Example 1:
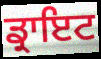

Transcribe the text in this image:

ਡ੍ਰਾਇਟ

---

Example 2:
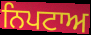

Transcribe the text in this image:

ਨਿਪਟਾਅ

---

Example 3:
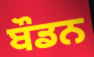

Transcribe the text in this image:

ਬੌਡਨ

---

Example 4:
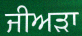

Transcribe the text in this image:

ਜੀਅੜਾ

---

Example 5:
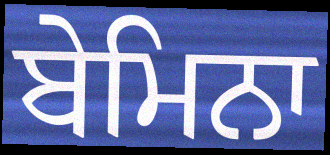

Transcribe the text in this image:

ਬੇਮਿਨਾ